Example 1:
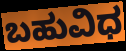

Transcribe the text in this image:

ಬಹುವಿಧ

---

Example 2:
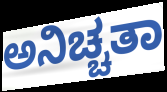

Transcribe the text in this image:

ಅನಿಚ್ಚತಾ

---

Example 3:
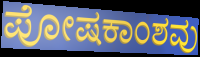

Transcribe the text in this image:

ಪೋಷಕಾಂಶವು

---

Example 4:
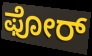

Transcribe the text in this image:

ಫೋರ್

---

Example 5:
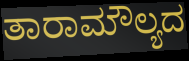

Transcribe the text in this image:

ತಾರಾಮೌಲ್ಯದ